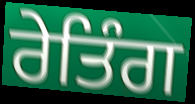
ਰੇਤਿੰਗ